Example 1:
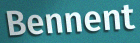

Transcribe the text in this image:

Bennent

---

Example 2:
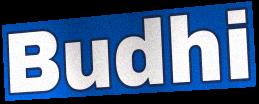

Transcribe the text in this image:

Budhi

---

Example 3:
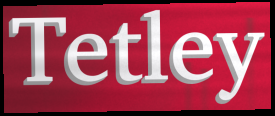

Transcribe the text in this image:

Tetley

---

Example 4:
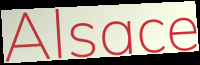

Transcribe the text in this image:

Alsace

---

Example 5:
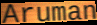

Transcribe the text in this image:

Aruman